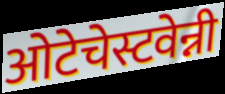
ओटेचेस्टवेन्नी